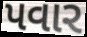
પવાર